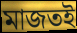
মাজতই